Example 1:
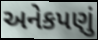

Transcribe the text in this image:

અનેકપણું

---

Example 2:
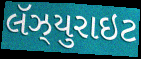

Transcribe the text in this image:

લૅઝ્યુરાઇટ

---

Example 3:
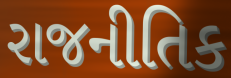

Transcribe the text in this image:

રાજનીતિક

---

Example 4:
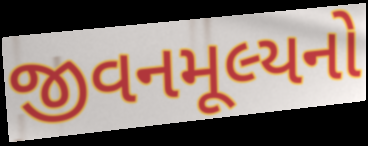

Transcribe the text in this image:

જીવનમૂલ્યનો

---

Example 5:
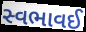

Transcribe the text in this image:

સ્વભાવઈ